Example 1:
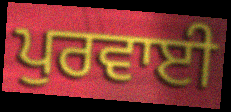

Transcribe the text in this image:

ਪੁਰਵਾਈ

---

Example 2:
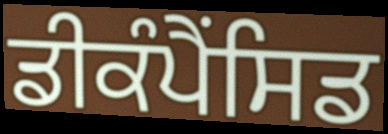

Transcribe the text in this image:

ਡੀਕੰਪੈਂਸਿਡ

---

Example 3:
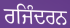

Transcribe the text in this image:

ਰਜਿੰਦਰਨ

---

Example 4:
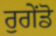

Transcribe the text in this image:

ਰੁਗੇਂਡੋ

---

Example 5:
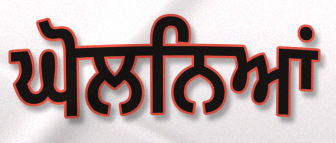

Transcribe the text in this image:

ਘੋਲਨਿਆਂ